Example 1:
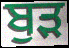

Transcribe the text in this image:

ਬੁੜ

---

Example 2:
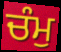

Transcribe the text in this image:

ਚੰਮੁ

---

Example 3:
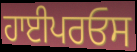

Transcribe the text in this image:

ਹਾਈਪਰਓਸ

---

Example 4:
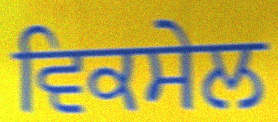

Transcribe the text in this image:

ਵਿਕਸੇਲ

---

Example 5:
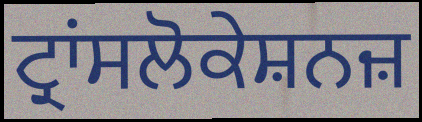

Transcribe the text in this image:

ਟ੍ਰਾਂਸਲੋਕੇਸ਼ਨਜ਼